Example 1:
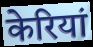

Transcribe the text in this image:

केरियां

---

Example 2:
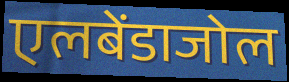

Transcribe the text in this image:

एलबेंडाजोल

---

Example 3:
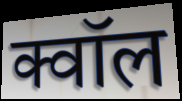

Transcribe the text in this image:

क्वॉल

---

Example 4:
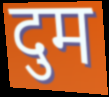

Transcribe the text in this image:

दुम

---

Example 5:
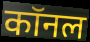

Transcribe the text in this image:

कॉनल